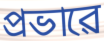
প্ৰভাৱে